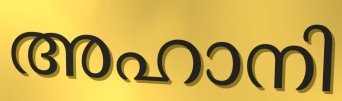
അഹാനി